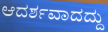
ಆದರ್ಶವಾದದ್ದು